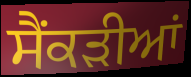
ਸੈਂਕੜੀਆਂ